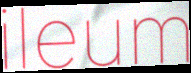
ileum